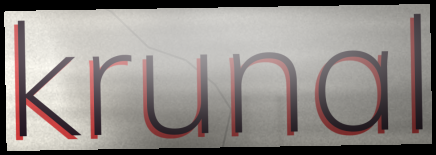
krunal